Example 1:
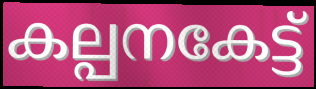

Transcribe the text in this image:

കല്പനകേട്ട്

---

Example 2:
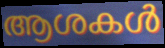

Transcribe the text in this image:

ആശകൾ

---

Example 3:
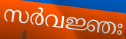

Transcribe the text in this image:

സർവജ്ഞഃ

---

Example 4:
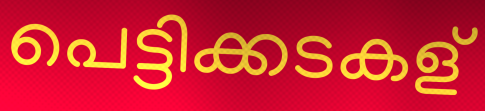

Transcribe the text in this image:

പെട്ടിക്കടകള്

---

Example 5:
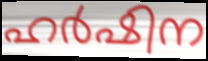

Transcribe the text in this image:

ഹർഷിന